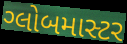
ગ્લોબમાસ્ટર